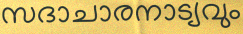
സദാചാരനാട്യവും